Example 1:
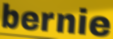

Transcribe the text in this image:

bernie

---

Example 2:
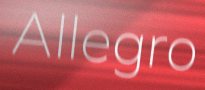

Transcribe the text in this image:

Allegro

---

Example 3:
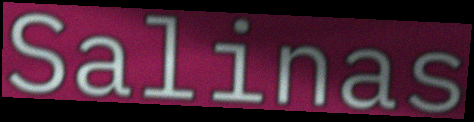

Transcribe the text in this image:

Salinas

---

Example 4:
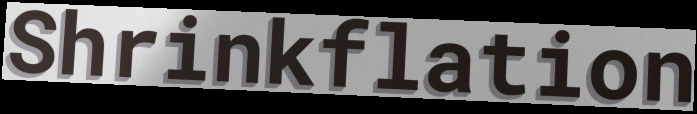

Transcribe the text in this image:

Shrinkflation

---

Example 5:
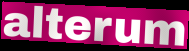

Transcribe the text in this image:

alterum